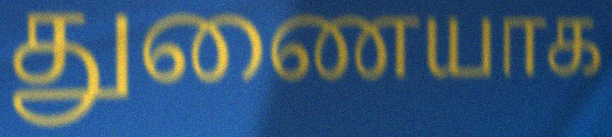
துணையாக